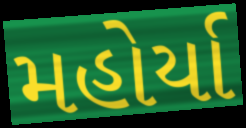
મહોર્યા